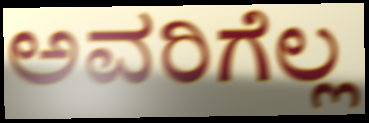
ಅವರಿಗೆಲ್ಲ